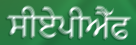
ਸੀਏਪੀਐੱਫ